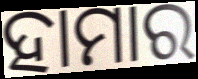
ହାମାର